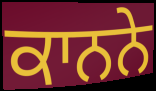
ਕਾਨਨੇ